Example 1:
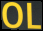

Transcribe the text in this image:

OL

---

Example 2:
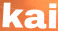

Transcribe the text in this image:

kai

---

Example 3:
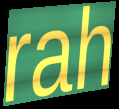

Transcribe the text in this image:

rah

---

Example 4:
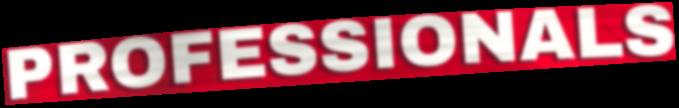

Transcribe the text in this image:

PROFESSIONALS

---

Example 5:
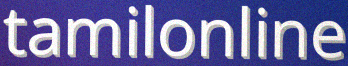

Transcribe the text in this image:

tamilonline